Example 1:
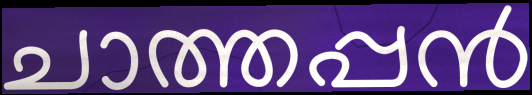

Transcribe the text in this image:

ചാത്തപ്പൻ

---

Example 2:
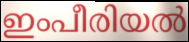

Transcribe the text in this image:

ഇംപീരിയൽ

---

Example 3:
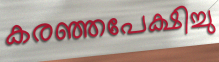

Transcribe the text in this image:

കരഞ്ഞപേക്ഷിച്ചു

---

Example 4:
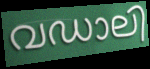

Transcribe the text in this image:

വഡാലി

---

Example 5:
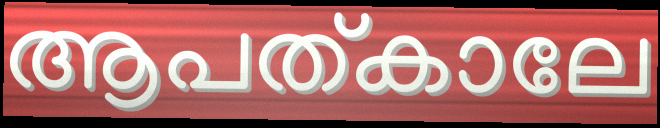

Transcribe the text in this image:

ആപത്കാലേ